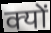
क्‍यों